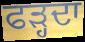
ਫੜ੍ਹਦਾ